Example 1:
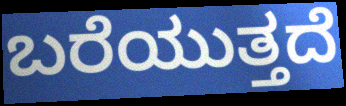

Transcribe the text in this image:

ಬರೆಯುತ್ತದೆ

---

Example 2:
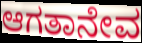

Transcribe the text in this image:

ಆಗತಾನೇವ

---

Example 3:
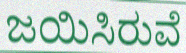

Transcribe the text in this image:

ಜಯಿಸಿರುವೆ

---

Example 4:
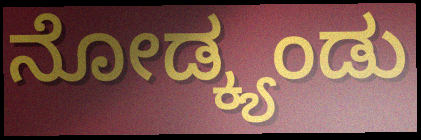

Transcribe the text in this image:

ನೋಡ್ಕ್ಯಂಡು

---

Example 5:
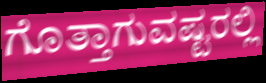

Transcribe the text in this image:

ಗೊತ್ತಾಗುವಷ್ಟರಲ್ಲಿ